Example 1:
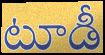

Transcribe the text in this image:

టూడీ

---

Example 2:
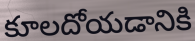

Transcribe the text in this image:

కూలదోయడానికి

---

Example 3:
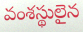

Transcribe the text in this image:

వంశస్థులైన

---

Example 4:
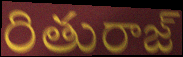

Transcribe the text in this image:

రితురాజ్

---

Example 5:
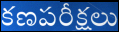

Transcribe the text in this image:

కణపరీక్షలు